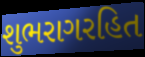
શુભરાગરહિત